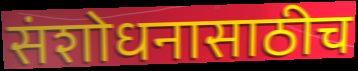
संशोधनासाठीच